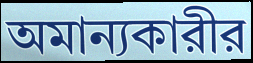
অমান্যকারীর